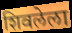
शिवलेला